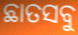
ଛାତସବୁ